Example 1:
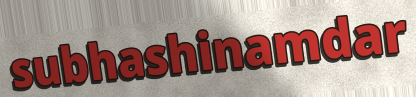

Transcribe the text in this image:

subhashinamdar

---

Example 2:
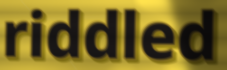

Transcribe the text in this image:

riddled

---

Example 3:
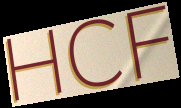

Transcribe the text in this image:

HCF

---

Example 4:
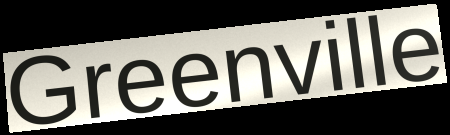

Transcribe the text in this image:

Greenville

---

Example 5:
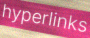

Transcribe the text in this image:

hyperlinks